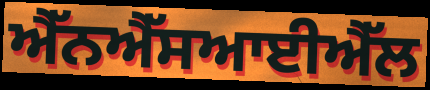
ਐੱਨਐੱਸਆਈਐੱਲ